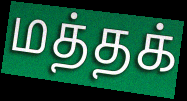
மத்தக்